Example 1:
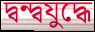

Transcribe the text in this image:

দ্বন্দ্বযুদ্ধে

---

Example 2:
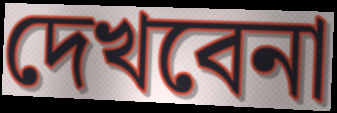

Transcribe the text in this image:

দেখবেনা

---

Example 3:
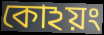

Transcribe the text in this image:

কোঽয়ং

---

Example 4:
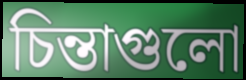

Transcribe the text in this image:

চিন্তাগুলো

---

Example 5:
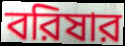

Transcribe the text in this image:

বরিষার